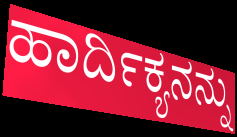
ಹಾರ್ದಿಕ್ಯನನ್ನು